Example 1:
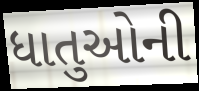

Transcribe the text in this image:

ધાતુઓની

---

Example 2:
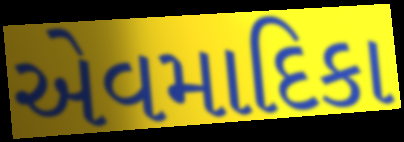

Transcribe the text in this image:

એવમાદિકા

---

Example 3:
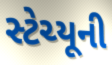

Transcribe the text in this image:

સ્ટેચ્યૂની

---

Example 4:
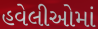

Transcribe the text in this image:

હવેલીઓમાં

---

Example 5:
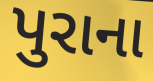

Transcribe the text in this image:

પુરાના